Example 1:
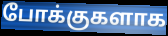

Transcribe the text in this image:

போக்குகளாக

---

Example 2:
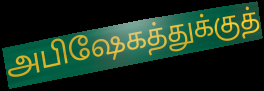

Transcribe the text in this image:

அபிஷேகத்துக்குத்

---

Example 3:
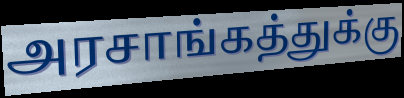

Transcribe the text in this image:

அரசாங்கத்துக்கு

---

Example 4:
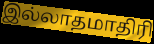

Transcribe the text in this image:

இல்லாதமாதிரி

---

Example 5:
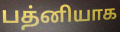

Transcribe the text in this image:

பத்னியாக